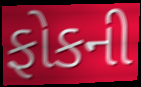
ફોકની